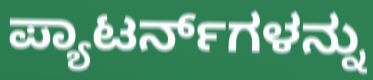
ಪ್ಯಾಟರ್ನ್‌ಗಳನ್ನು